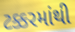
ટક્કરમાંથી